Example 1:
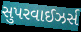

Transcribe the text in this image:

સુપરવાઈઝર્સ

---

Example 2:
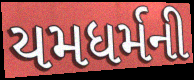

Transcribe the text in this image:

યમધર્મની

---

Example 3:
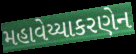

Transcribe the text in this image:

મહાવેય્યાકરણેન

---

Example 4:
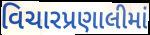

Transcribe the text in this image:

વિચારપ્રણાલીમાં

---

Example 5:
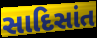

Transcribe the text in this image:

સાદિસાંત